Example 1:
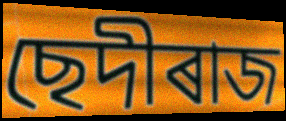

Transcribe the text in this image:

ছেদীৰাজ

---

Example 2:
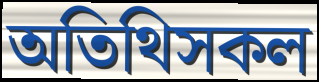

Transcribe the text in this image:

অতিথিসকল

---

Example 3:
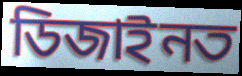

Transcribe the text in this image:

ডিজাইনত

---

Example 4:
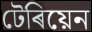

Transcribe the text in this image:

টেৰিয়েন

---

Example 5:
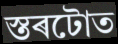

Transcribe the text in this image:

স্তৰটোত